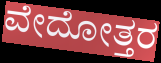
ವೇದೋತ್ತರ